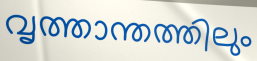
വൃത്താന്തത്തിലും